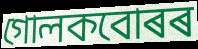
গোলকবোৰৰ